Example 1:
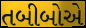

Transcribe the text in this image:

તબીબોએ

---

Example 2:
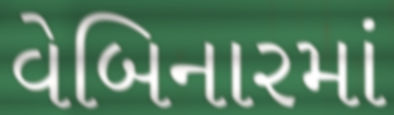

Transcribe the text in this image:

વેબિનારમાં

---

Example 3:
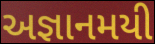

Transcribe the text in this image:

અજ્ઞાનમયી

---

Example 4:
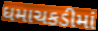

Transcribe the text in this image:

ધમાચકડીમાં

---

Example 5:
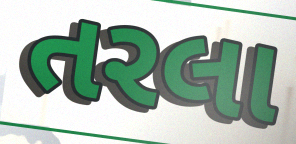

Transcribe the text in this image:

તરલા